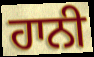
ਹਾਨੀ